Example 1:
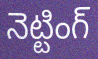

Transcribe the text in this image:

నెట్టింగ్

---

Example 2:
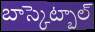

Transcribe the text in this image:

బాస్కెట్బాల్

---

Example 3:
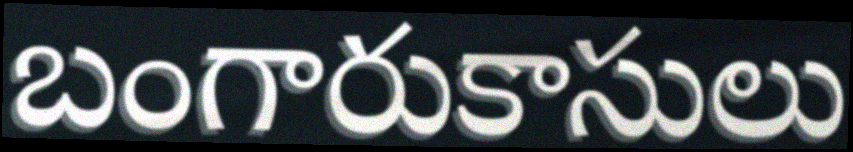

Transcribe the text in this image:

బంగారుకాసులు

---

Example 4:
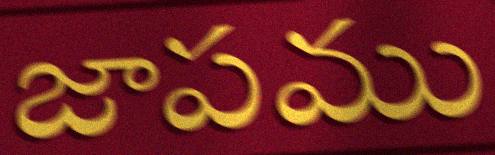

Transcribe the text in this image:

జాపము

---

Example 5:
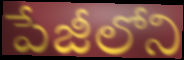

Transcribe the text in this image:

పేజీలోని